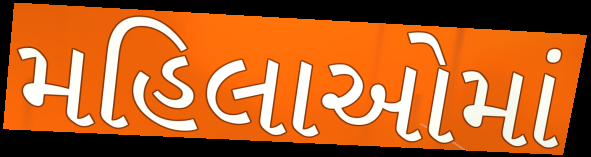
મહિલાઓમાં